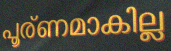
പൂര്ണമാകില്ല